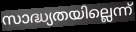
സാദ്ധ്യതയില്ലെന്ന്